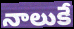
నాలుకే